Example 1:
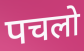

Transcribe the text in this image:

पचलो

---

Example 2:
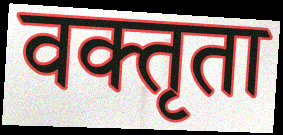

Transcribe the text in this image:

वक्तृता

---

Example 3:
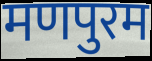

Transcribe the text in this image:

मणपुरम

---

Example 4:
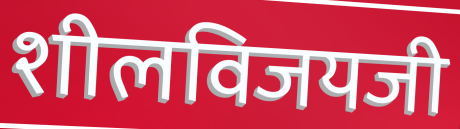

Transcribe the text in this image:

शीलविजयजी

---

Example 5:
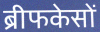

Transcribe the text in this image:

ब्रीफकेसों